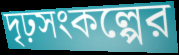
দৃঢ়সংকল্পের